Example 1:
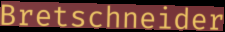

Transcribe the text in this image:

Bretschneider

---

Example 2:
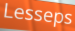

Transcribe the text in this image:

Lesseps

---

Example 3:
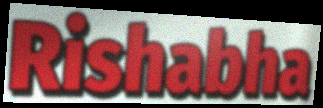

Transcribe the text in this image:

Rishabha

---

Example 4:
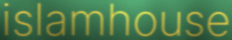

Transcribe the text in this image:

islamhouse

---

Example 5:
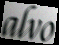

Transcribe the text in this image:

alvo